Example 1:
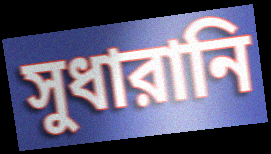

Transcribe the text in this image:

সুধারানি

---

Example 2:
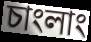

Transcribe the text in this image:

চাংলাং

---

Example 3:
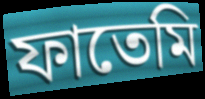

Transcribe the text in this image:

ফাতেমি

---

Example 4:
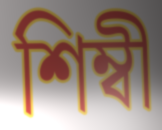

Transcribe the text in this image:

শিম্বী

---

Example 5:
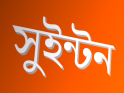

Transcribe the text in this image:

সুইন্টন